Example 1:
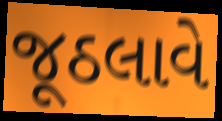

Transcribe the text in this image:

જૂઠલાવે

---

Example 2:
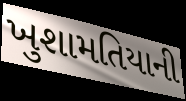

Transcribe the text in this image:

ખુશામતિયાની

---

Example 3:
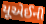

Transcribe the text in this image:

યૂએઈની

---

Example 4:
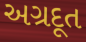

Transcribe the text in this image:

અગ્રદૂત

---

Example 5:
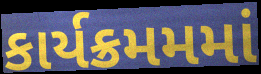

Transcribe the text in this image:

કાર્યક્રમમમાં